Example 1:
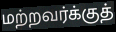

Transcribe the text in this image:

மற்றவர்க்குத்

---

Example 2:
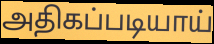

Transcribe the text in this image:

அதிகப்படியாய்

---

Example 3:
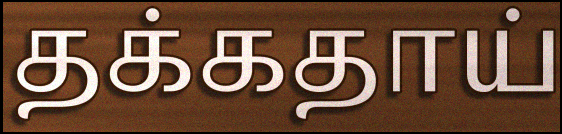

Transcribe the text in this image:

தக்கதாய்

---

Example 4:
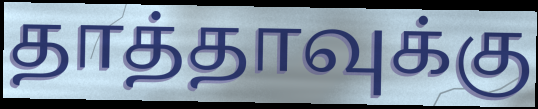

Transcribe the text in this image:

தாத்தாவுக்கு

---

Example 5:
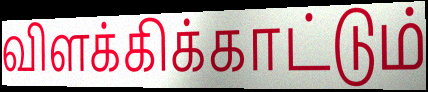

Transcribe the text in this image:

விளக்கிக்காட்டும்